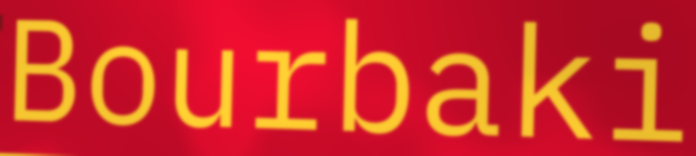
Bourbaki